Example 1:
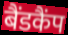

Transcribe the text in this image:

बैंडकैंप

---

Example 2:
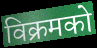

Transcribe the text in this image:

विक्रमको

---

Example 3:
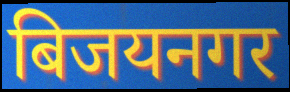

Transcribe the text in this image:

बिजयनगर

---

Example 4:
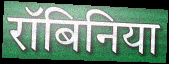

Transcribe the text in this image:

रॉबिनिया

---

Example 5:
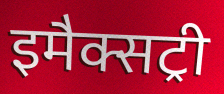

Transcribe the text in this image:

इमैक्सट्री